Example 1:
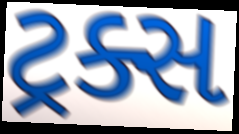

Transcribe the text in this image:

ટ્રક્સ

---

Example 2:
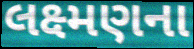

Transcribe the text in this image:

લક્ષ્મણના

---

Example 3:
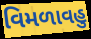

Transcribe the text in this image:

વિમળાવહુ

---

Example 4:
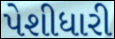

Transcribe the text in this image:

પેશીધારી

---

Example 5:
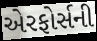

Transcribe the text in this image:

એરફોર્સની